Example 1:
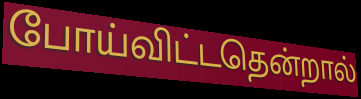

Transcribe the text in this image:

போய்விட்டதென்றால்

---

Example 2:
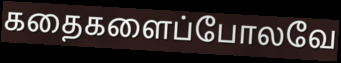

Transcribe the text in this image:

கதைகளைப்போலவே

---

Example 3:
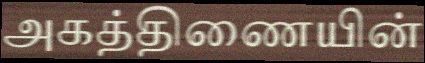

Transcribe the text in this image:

அகத்திணையின்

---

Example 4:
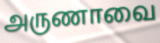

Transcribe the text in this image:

அருணாவை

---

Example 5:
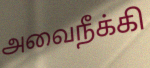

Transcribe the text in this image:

அவைநீக்கி